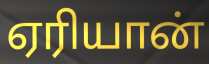
ஏரியான்